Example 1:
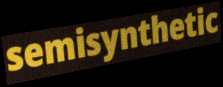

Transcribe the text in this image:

semisynthetic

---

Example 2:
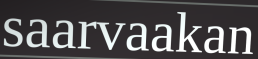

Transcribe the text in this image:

saarvaakan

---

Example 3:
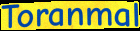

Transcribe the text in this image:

Toranmal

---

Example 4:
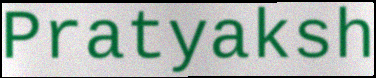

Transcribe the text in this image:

Pratyaksh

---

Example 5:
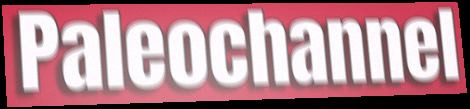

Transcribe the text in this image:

Paleochannel